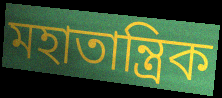
মহাতান্ত্রিক